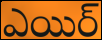
ఎయిర్